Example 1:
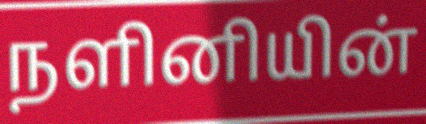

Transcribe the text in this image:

நளினியின்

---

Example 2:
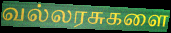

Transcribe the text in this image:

வல்லரசுகளை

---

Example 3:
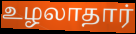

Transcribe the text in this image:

உழலாதார்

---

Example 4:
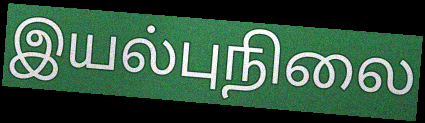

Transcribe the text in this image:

இயல்புநிலை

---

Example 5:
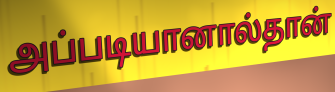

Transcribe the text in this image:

அப்படியானால்தான்